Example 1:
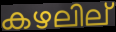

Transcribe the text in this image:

കഴലില്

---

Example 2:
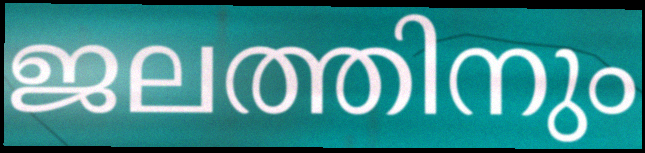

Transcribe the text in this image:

ജലത്തിനും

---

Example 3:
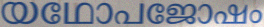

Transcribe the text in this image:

യഥോപജോഷം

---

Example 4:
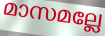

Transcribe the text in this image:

മാസമല്ലേ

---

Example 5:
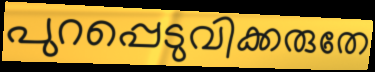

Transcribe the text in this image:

പുറപ്പെടുവിക്കരുതേ